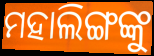
ମହାଲିଙ୍ଗଙ୍କୁ